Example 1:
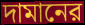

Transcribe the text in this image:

দামানের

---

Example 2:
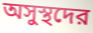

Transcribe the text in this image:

অসুস্থদের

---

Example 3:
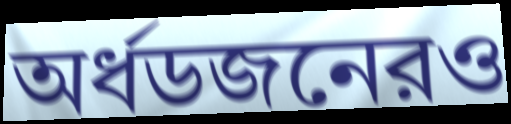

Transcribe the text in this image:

অর্ধডজনেরও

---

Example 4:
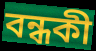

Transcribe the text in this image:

বন্ধকী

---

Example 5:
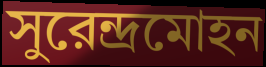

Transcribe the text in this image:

সুরেন্দ্রমোহন